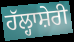
ਹੱਲ੍ਹਾਸ਼ੇਰੀ